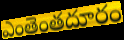
ఎంతెంతదూరం